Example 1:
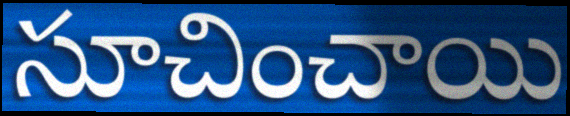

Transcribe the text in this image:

సూచించాయి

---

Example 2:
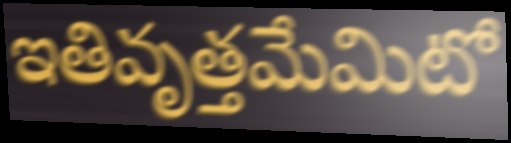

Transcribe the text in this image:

ఇతివృత్తమేమిటో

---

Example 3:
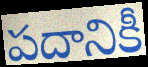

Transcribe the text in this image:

పదానికీ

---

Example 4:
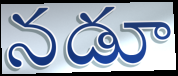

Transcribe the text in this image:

నడూ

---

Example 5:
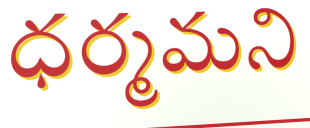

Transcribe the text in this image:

ధర్మమని